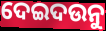
ଦେଇଦଉନୁ